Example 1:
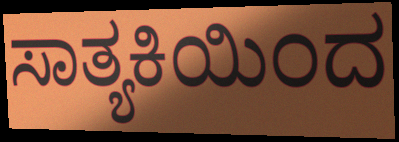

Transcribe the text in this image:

ಸಾತ್ಯಕಿಯಿಂದ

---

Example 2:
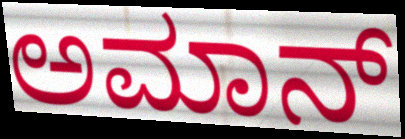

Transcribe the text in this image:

ಅಮಾನ್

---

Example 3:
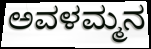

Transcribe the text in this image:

ಅವಳಮ್ಮನ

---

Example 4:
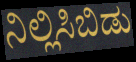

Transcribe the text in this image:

ನಿಲ್ಲಿಸಿಬಿಡು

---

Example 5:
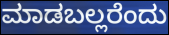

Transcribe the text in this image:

ಮಾಡಬಲ್ಲರೆಂದು